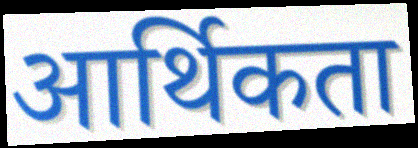
आर्थिकता